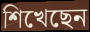
শিখেছেন